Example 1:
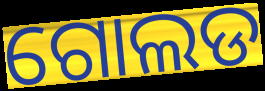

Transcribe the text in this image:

ଗୋଲଡ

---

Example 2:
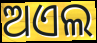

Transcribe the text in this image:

ଅଏଲ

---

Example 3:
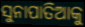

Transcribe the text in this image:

ସୁନାପାତିଆକୁ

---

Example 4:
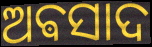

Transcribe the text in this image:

ଅଵସାଦ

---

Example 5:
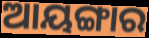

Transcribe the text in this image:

ଆୟଙ୍ଗାର